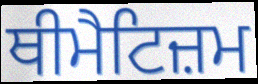
ਥੀਮੈਟਿਜ਼ਮ